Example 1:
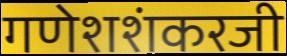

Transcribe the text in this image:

गणेशशंकरजी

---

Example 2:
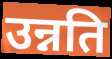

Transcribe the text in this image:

उन्नति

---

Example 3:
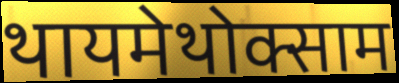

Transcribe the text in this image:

थायमेथोक्साम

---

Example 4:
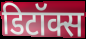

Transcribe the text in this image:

डिटॉक्स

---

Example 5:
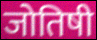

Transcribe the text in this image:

जोतिषी